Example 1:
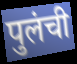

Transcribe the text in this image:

पुलंची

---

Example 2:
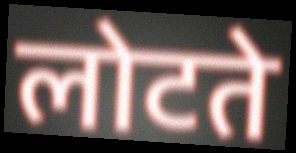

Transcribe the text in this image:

लोटते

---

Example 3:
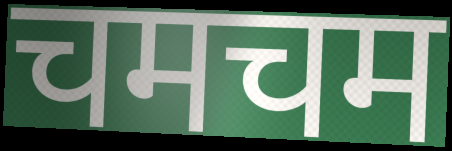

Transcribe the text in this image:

चमचम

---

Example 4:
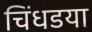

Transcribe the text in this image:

चिंधडया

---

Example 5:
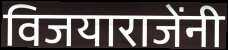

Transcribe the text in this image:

विजयाराजेंनी